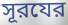
সূরযের